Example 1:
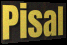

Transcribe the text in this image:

Pisal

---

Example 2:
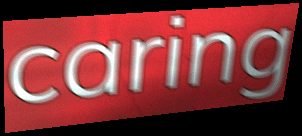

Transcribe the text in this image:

caring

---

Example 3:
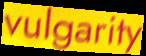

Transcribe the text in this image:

vulgarity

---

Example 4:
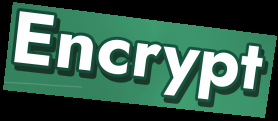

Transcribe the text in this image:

Encrypt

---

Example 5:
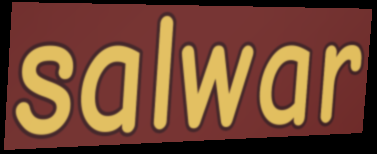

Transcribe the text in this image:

salwar